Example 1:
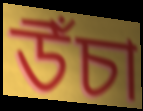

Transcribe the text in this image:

উঁচা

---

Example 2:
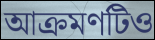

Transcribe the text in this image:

আক্রমণটিও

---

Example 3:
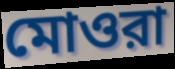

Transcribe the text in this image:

মোওরা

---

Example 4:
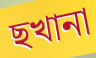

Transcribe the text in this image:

ছখানা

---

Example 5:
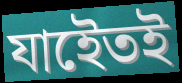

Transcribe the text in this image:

যাইেতই